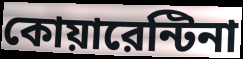
কোয়ারেন্টিনা